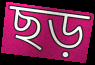
ছড়